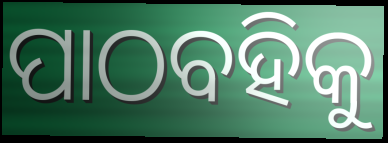
ପାଠବହିକୁ